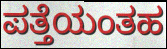
ಪತ್ತೆಯಂತಹ